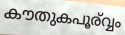
കൗതുകപൂര്വ്വം